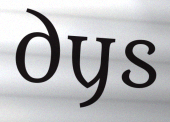
dys